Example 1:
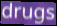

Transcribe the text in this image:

drugs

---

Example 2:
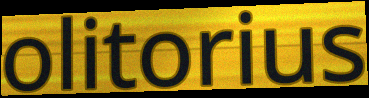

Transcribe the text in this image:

olitorius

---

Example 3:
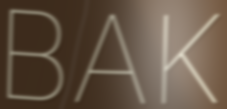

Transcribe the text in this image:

BAK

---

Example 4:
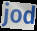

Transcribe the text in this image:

jod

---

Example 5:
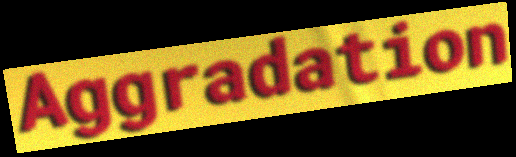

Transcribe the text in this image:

Aggradation